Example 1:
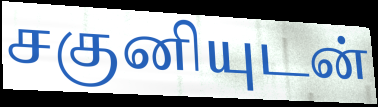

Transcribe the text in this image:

சகுனியுடன்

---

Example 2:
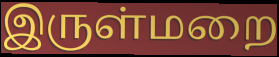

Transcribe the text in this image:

இருள்மறை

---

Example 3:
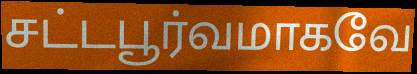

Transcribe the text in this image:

சட்டபூர்வமாகவே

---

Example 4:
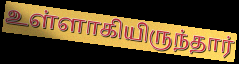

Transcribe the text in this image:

உள்ளாகியிருந்தார்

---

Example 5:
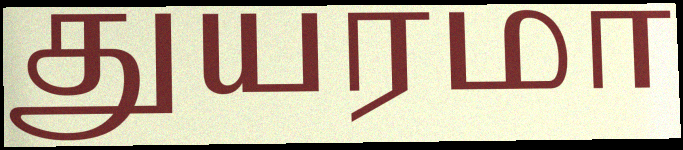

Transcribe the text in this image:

துயரமா